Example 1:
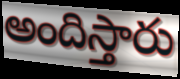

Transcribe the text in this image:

అందిస్తారు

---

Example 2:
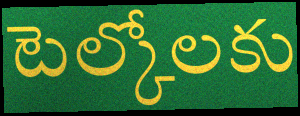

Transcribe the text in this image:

టెల్కోలకు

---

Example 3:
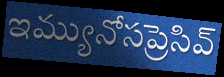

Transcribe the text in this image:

ఇమ్యునోసప్రెసివ్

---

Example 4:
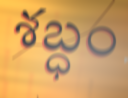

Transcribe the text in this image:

శబ్ధం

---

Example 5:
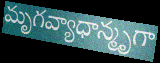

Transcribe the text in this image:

మృగవ్యాధాన్మృగా